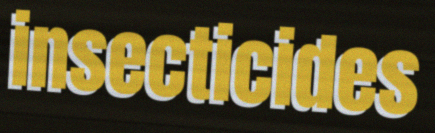
insecticides